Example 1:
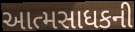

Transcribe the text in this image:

આત્મસાધકની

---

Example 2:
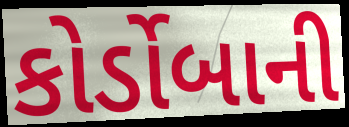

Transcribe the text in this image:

કોર્ડોબાની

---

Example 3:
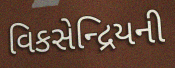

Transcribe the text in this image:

વિકસેન્દ્રિયની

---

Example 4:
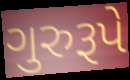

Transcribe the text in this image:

ગુરુરૂપે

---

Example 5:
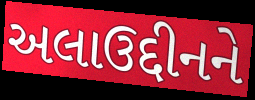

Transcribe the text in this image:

અલાઉદ્દીનને